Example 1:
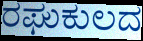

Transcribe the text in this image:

ರಘುಕುಲದ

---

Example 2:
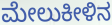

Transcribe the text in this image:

ಮೇಲುಕೀಳಿನ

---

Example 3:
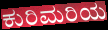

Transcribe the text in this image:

ಕುರಿಮರಿಯ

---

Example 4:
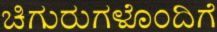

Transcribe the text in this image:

ಚಿಗುರುಗಳೊಂದಿಗೆ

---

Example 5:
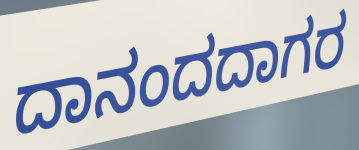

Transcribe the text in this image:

ದಾನಂದದಾಗರ